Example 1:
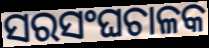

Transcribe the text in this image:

ସରସଂଘଚାଳକ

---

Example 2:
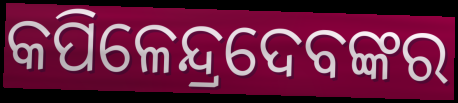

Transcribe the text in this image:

କପିଳେନ୍ଦ୍ରଦେବଙ୍କର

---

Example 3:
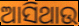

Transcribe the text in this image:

ଆସିଥାଉ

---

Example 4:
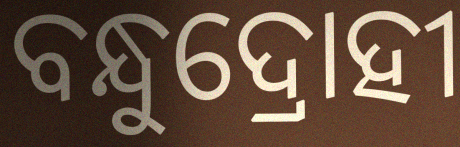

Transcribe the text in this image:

ବନ୍ଧୁଦ୍ରୋହୀ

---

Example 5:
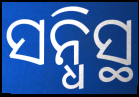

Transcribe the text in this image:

ସନ୍ଧିସ୍ଥ